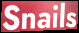
Snails